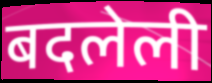
बदलेली